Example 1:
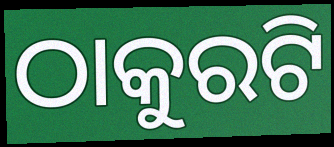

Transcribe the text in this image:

ଠାକୁରଟି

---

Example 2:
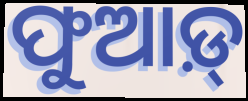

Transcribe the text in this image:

ଫୁଆଡ଼୍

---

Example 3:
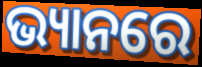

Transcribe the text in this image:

ଭ୍ୟାନରେ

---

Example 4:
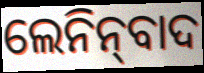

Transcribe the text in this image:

ଲେନିନ୍‌ବାଦ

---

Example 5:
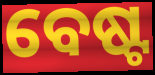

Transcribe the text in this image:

ବେଷ୍ଟ